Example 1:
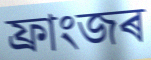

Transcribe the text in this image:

ফ্ৰাংজৰ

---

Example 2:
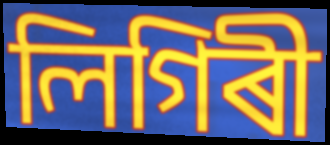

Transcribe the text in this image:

লিগিৰী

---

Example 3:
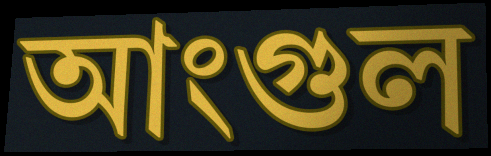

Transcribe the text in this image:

আংগুল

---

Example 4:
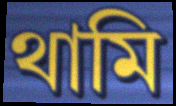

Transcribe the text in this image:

থামি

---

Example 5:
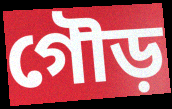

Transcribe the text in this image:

গৌড়